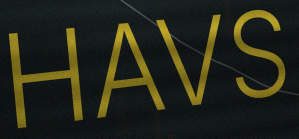
HAVS